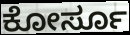
ಕೋರ್ಸೂ